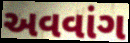
અવવાંગ